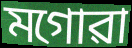
মগোৱা